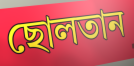
ছোলতান